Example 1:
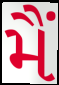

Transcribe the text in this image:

મૈં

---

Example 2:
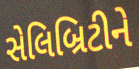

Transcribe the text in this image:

સેલિબ્રિટીને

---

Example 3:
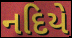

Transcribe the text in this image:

નદિયે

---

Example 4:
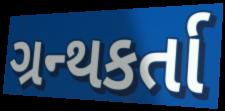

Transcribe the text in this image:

ગ્રન્થકર્તા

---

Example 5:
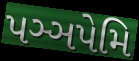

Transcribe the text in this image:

પઞ્ઞપેમિ